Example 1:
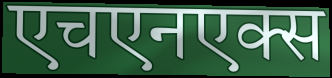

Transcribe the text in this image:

एचएनएक्स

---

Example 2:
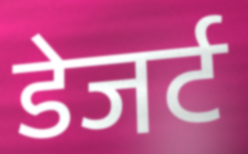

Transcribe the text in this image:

डेजर्ट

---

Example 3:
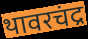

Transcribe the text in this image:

थावरचंद्र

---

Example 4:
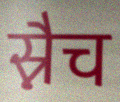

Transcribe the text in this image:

स्नैच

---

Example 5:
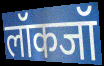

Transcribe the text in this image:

लॉकजॉ